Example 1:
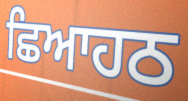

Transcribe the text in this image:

ਛਿਆਹਠ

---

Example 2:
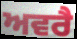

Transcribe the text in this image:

ਅਵਰੈ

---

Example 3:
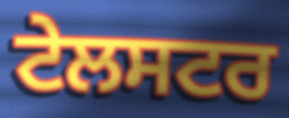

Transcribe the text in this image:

ਟੇਲਸਟਰ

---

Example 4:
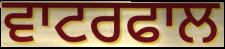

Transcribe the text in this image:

ਵਾਟਰਫਾਲ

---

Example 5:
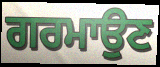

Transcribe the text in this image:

ਗਰਮਾਉਣ